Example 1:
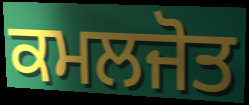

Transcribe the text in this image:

ਕਮਲਜੋਤ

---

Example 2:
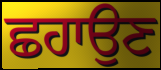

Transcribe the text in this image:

ਛਹਾਉਣ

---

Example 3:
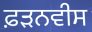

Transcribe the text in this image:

ਫ਼ੜਨਵੀਸ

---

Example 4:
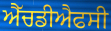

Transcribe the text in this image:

ਐੱਚਡੀਐਫਸੀ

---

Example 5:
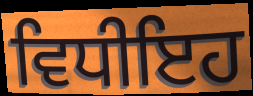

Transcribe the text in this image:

ਵਿਧੀਇਹ